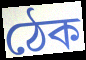
ঠেক